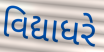
વિદ્યાધરે